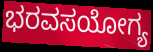
ಭರವಸಯೋಗ್ಯ